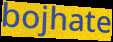
bojhate